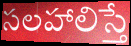
సలహాలిస్తే